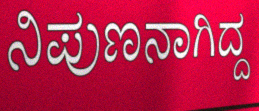
ನಿಪುಣನಾಗಿದ್ದ